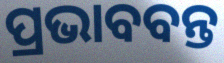
ପ୍ରଭାବବନ୍ତ